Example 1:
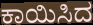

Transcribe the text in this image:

ಕಾಯಿಸಿದ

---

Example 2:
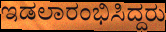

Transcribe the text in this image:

ಇಡಲಾರಂಭಿಸಿದ್ದರು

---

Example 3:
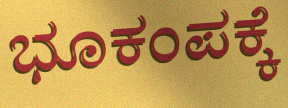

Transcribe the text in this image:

ಭೂಕಂಪಕ್ಕೆ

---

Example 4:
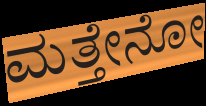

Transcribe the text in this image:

ಮತ್ತೇನೋ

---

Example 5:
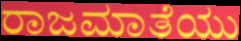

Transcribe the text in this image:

ರಾಜಮಾತೆಯು